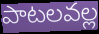
పాటలవల్ల